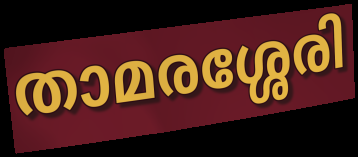
താമരശ്ശേരി